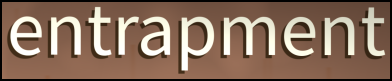
entrapment